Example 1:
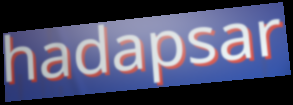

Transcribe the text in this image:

hadapsar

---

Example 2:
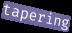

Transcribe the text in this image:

tapering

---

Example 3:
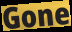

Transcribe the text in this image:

Gone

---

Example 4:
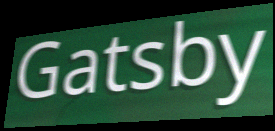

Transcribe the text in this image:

Gatsby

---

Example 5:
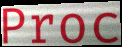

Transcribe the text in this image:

Proc